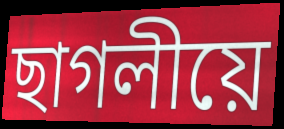
ছাগলীয়ে